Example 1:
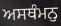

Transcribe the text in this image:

ਅਸਥੰਮਨੁ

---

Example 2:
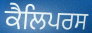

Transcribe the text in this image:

ਕੈਲਿਪਰਸ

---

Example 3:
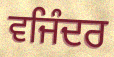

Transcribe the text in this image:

ਵਜਿੰਦਰ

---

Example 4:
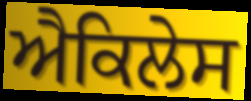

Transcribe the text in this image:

ਐਕਿਲੇਸ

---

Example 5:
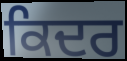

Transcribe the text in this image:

ਕਿਦਰ